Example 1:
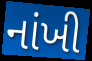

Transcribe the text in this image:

નાંખી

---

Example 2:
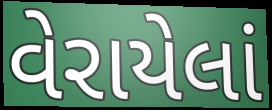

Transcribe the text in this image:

વેરાયેલાં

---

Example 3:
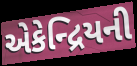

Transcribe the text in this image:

એકેન્દ્રિયની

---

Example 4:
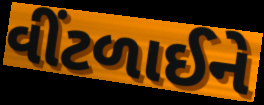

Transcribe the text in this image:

વીંટળાઈને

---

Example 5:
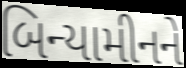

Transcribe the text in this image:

બિન્યામીનને